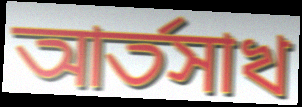
আর্তসাখ